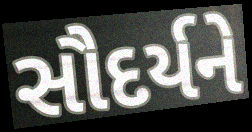
સૌદર્યને